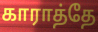
காராத்தே